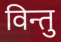
विन्तु